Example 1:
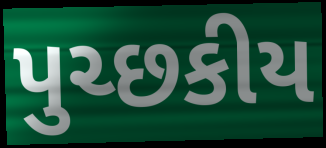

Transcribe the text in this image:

પુચ્છકીય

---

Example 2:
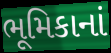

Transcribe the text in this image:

ભૂમિકાનાં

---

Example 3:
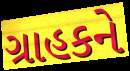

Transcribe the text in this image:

ગ્રાહકને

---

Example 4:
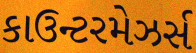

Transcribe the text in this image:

કાઉન્ટરમેઝર્સ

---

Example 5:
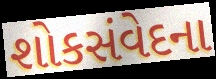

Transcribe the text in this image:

શોકસંવેદના